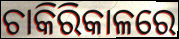
ଚାକିରିକାଳରେ